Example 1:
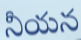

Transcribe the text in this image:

నీయన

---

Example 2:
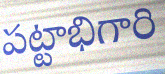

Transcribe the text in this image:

పట్టాభిగారి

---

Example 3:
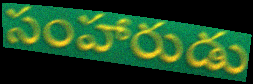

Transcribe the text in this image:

సంహారుడు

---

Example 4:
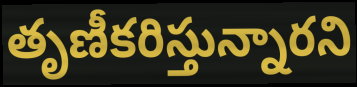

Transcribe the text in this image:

తృణీకరిస్తున్నారని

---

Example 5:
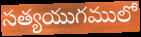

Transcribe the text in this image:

సత్యయుగములో